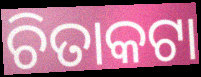
ଚିତାକଟା